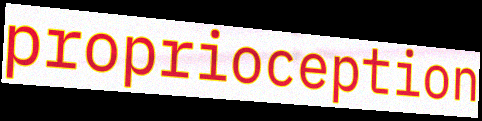
proprioception